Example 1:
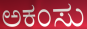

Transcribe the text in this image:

ಅಕಂಸು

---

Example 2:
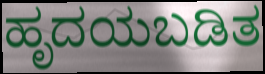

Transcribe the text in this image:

ಹೃದಯಬಡಿತ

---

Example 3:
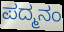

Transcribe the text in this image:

ಪದ್ಮನಂ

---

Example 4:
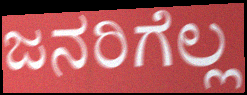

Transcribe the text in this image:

ಜನರಿಗೆಲ್ಲ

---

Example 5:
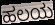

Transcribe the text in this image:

ಹಲಯ